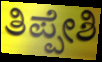
ತಿಪ್ಪೇಶಿ